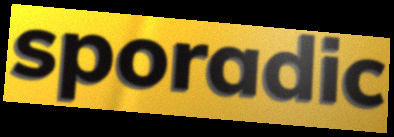
sporadic